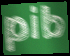
pib